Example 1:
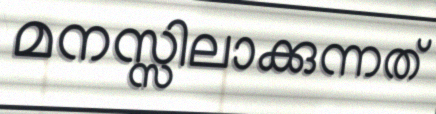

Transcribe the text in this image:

മനസ്സിലാക്കുന്നത്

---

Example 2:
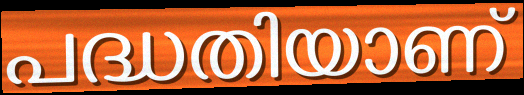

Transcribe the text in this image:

പദ്ധതിയാണ്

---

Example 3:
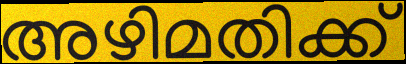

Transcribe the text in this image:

അഴിമതിക്ക്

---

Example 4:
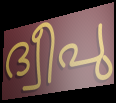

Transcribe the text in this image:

ദ്വീപു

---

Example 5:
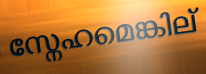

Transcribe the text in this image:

സ്നേഹമെങ്കില്